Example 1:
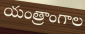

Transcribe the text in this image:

యంత్రాంగాల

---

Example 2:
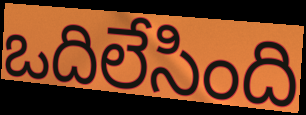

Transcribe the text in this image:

ఒదిలేసింది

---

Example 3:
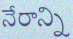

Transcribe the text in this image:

నేరాన్ని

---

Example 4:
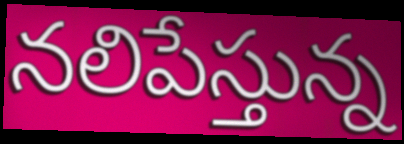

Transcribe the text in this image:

నలిపేస్తున్న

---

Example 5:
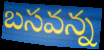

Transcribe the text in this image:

బసవన్న